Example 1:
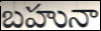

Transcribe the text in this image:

బహునా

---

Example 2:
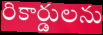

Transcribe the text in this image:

రికార్డులను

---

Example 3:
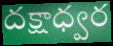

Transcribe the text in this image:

దక్షాధ్వర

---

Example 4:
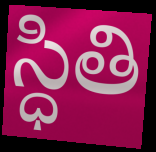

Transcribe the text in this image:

స్ధితి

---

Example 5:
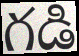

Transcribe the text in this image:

గడి